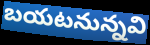
బయటనున్నవి